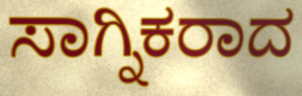
ಸಾಗ್ನಿಕರಾದ